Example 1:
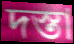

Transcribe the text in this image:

দস্তা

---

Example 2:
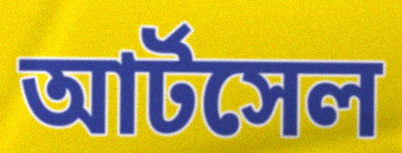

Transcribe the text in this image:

আর্টসেল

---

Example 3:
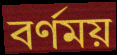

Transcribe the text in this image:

বর্ণময়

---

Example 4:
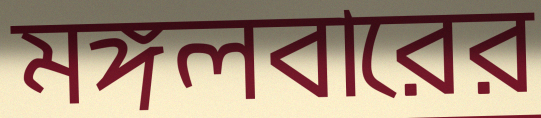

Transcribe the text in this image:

মঙ্গলবারের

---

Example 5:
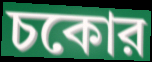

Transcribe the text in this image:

চকোর